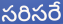
సరిసరే